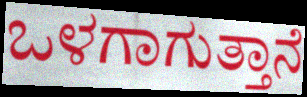
ಒಳಗಾಗುತ್ತಾನೆ